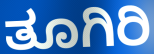
ತೂಗಿರಿ